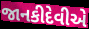
જાનકીદેવીએ